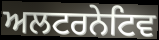
ਅਲਟਰਨੇਟਿਵ